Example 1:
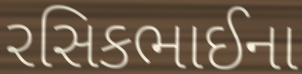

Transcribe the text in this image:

રસિકભાઈના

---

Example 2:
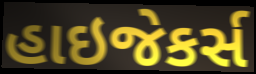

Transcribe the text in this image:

હાઇજેકર્સ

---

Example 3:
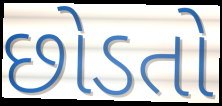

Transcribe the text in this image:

છોડતો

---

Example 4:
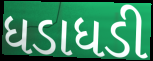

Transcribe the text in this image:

ધડાધડી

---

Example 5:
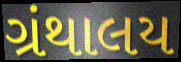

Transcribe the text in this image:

ગ્રંથાલય